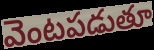
వెంటపడుతూ